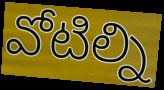
వోటిల్ని